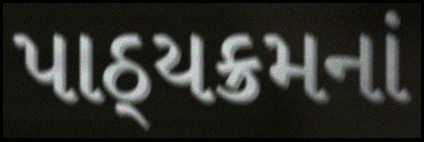
પાઠ્યક્રમનાં